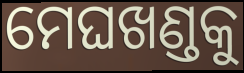
ମେଘଖଣ୍ଡକୁ